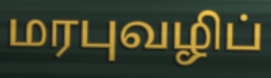
மரபுவழிப்